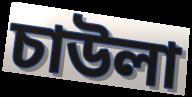
চাউলা